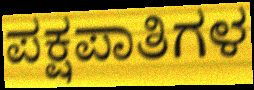
ಪಕ್ಷಪಾತಿಗಳ